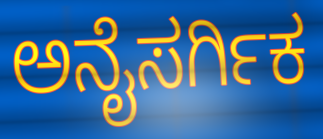
ಅನೈಸರ್ಗಿಕ